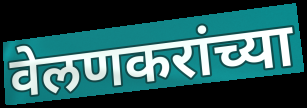
वेलणकरांच्या